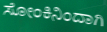
ಸೋಂಕಿನಿಂದಾಗಿ